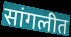
सांगलीत